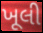
ખૂલી